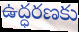
ఉద్ధరణకు